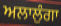
ਅਲਾਲੁੰਗਾ